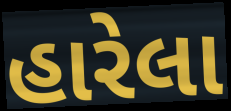
હારેલા